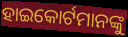
ହାଇକୋର୍ଟମାନଙ୍କୁ